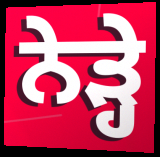
ਨੇੜ੍ਹੇ